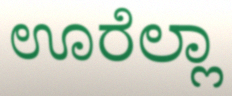
ಊರೆಲ್ಲಾ